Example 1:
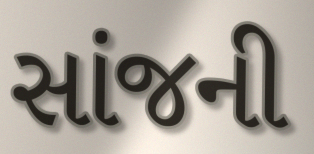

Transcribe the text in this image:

સાંજની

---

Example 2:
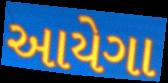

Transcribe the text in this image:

આયેગા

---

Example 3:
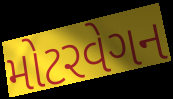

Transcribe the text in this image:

મોટરવેગન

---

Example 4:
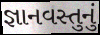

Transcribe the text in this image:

જ્ઞાનવસ્તુનું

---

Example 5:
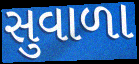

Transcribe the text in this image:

સુવાળા